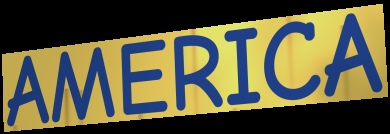
AMERICA